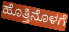
ಹೊತ್ತಿನೊಳಗೆ